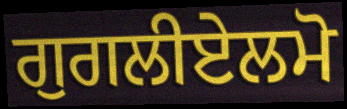
ਗੁਗਲੀਏਲਮੋ